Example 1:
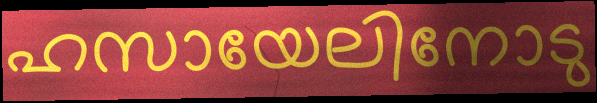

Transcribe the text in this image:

ഹസായേലിനോടു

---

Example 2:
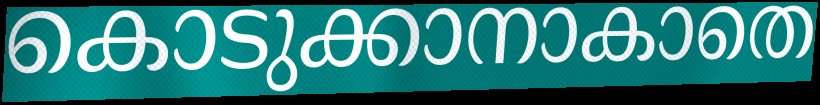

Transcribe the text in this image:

കൊടുക്കാനാകാതെ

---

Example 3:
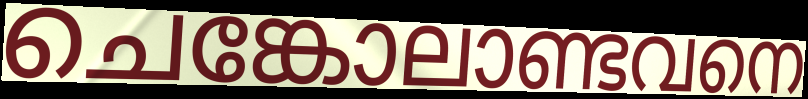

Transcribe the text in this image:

ചെങ്കോലാണ്ടവനെ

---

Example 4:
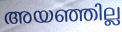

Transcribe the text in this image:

അയഞ്ഞില്ല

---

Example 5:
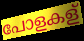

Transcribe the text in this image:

പോളകള്